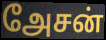
அேசன்